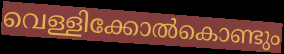
വെള്ളിക്കോൽകൊണ്ടും